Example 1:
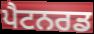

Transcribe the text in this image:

ਪੈਟਨਰਡ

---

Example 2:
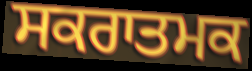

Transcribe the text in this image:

ਸਕਰਾਤਮਕ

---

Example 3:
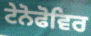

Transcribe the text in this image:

ਟੇਨੋਫੋਵਿਰ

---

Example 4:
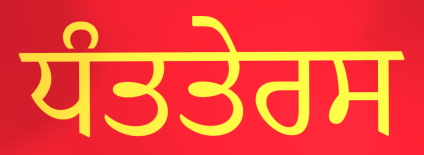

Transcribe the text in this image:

ਧੰਤਤੇਰਸ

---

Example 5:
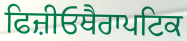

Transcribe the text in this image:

ਫਿਜ਼ੀਓਥੈਰਾਪਟਿਕ